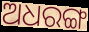
ଅଧରଙ୍ଗ